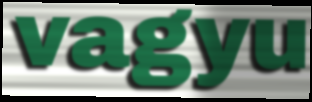
vagyu